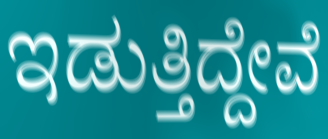
ಇಡುತ್ತಿದ್ದೇವೆ